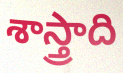
శాస్త్రాది